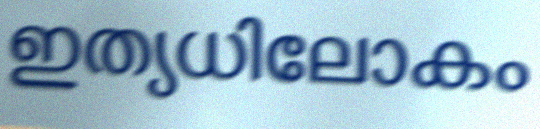
ഇത്യധിലോകം